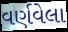
વર્ણવેલા